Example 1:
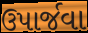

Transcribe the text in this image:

ઉપાર્જવા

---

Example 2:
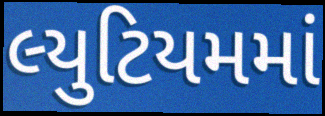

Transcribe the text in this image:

લ્યુટિયમમાં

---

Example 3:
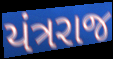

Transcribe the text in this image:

યંત્રરાજ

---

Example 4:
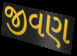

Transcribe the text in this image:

જીવણ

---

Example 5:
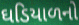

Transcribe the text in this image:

ઘડિયાળનો